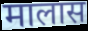
मालास